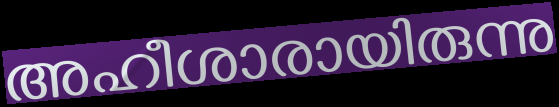
അഹീശാരായിരുന്നു